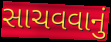
સાચવવાનું